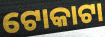
ଟୋକାଟା